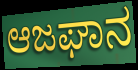
ಆಜಘಾನ